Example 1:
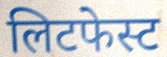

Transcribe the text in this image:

लिटफेस्ट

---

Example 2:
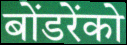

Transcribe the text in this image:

बोंडरेंको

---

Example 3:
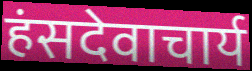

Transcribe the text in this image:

हंसदेवाचार्य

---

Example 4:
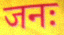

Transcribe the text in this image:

जनः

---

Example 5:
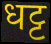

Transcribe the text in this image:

धट्ट